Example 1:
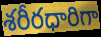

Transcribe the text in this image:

శరీరధారిగా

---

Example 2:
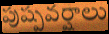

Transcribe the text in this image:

పుష్పవర్షాలు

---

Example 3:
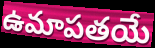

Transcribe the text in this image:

ఉమాపతయే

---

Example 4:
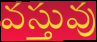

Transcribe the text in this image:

వస్తువు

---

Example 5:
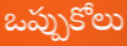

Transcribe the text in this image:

ఒప్పుకోలు